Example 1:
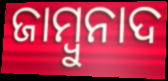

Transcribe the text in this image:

ଜାମ୍ବୁନାଦ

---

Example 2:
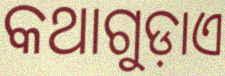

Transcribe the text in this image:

କଥାଗୁଡ଼ାଏ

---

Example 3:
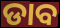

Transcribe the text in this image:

ଡାବ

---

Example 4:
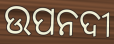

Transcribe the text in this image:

ଉପନଦୀ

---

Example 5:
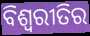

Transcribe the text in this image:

ବିଶ୍ଵରୀତିର